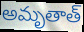
అమృతాత్